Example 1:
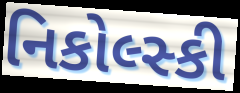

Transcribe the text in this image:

નિકોલ્સ્કી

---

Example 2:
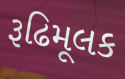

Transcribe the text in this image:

રૂઢિમૂલક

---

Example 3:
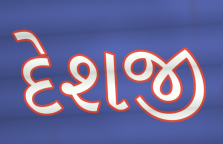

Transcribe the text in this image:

દેશજી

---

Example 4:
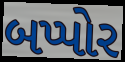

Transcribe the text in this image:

બપ્પોર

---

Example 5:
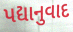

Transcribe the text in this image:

પદ્યાનુવાદ